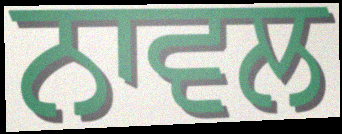
ਨਾਵਲ